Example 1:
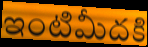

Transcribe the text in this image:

ఇంటిమీదకి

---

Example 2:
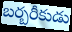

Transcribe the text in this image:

బర్బరీకుడు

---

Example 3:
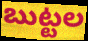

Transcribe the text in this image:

బుట్టల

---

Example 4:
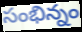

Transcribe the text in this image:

సంభిన్నం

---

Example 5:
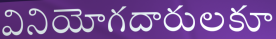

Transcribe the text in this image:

వినియోగదారులకూ